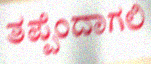
ತಪ್ಪೆಂದಾಗಲಿ